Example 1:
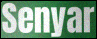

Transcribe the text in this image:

Senyar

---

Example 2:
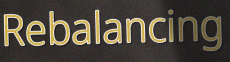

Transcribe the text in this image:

Rebalancing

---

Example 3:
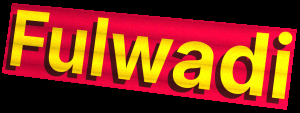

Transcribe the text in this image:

Fulwadi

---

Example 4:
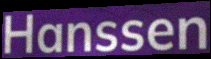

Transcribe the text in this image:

Hanssen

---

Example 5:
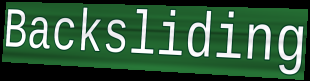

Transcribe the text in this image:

Backsliding